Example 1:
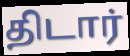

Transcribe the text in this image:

திடார்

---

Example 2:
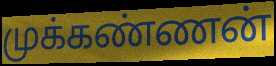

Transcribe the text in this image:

முக்கண்ணன்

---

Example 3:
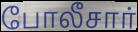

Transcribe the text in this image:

போலீசார்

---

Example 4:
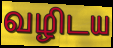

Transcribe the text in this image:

வழிடய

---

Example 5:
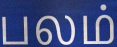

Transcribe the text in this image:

பலம்